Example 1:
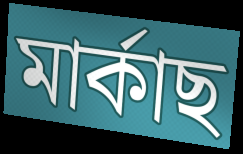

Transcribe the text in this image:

মাৰ্কাছ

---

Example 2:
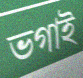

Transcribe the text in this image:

ভগাই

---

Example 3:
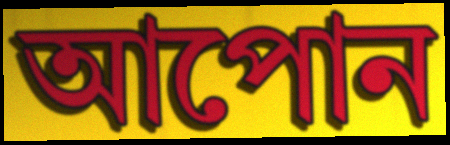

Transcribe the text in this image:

আপোন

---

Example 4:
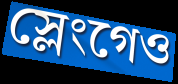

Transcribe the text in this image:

স্লেংগেও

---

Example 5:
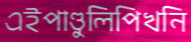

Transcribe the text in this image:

এইপাণ্ডুলিপিখনি